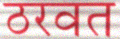
ठरवत